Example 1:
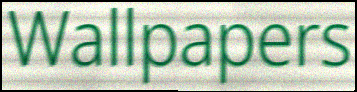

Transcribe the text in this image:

Wallpapers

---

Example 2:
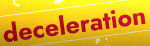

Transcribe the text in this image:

deceleration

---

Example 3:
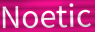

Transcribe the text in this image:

Noetic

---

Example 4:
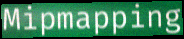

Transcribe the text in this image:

Mipmapping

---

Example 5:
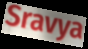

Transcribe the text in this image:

Sravya